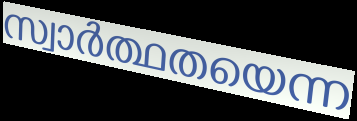
സ്വാർത്ഥതയെന്ന